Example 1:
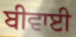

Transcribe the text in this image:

ਬੀਵਾਈ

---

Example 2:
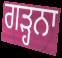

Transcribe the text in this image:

ਗੜ੍ਹਨਾ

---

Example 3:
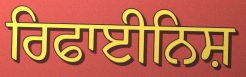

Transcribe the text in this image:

ਰਿਫਾਈਨਿਸ਼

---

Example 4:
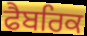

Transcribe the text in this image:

ਫੈਬਰਿਕ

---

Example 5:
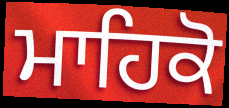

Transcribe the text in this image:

ਮਾਹਿਕੋ